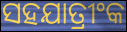
ସହଯାତ୍ରୀଂକ